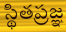
స్థితప్రజ్ఞ